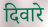
दिवारे